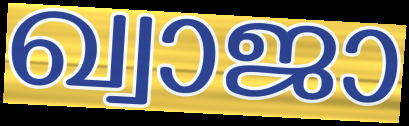
ഖ്വാജാ